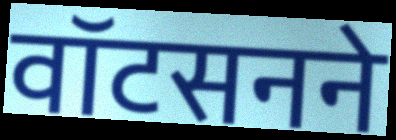
वॉटसनने